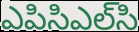
ఎపిసిఎల్‌సి